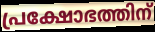
പ്രക്ഷോഭത്തിന്